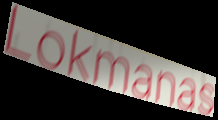
Lokmanas